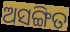
ଅସଙ୍ଗିତ